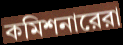
কমিশনারেরা